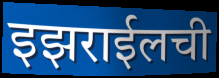
इझराईलची